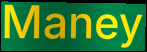
Maney